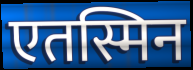
एतस्मिन